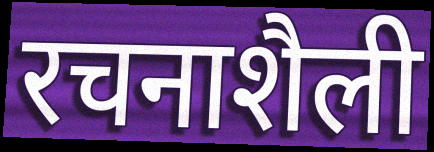
रचनाशैली